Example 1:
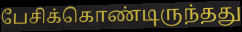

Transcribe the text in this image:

பேசிக்கொண்டிருந்தது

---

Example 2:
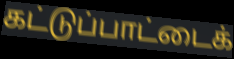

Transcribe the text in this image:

கட்டுப்பாட்டைக்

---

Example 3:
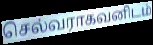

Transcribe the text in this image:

செல்வராகவனிடம்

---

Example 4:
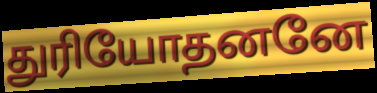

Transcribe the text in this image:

துரியோதனனே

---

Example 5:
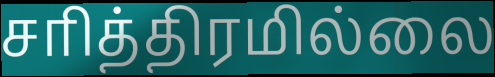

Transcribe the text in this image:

சரித்திரமில்லை